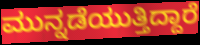
ಮುನ್ನಡೆಯುತ್ತಿದ್ದಾರೆ